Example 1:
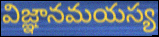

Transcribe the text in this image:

విజ్ఞానమయస్య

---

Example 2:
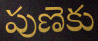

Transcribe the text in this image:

పుణెకు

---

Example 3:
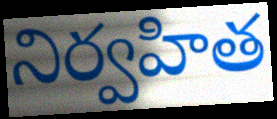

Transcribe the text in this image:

నిర్వహిత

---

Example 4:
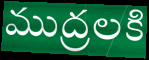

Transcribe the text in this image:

ముద్రలకి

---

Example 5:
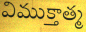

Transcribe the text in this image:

విముక్తాత్మ